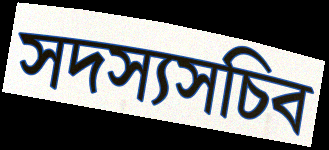
সদস্যসচিব